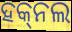
ହକ୍‌ନଲ